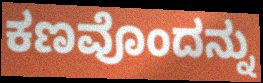
ಕಣವೊಂದನ್ನು